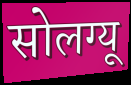
सोलग्यू